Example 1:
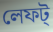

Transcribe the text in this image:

লেফট্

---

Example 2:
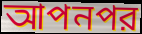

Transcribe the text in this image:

আপনপর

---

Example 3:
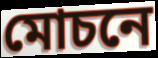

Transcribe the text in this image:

মোচনে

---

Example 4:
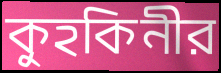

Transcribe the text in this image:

কুহকিনীর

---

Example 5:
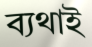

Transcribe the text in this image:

ব্যথাই